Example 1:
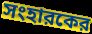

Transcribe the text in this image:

সংহারকের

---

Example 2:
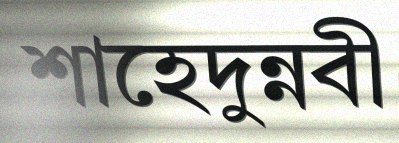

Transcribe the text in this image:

শাহেদুন্নবী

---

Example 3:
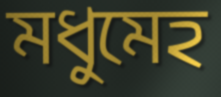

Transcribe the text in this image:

মধুমেহ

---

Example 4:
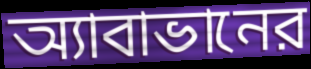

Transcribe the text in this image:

অ্যাবাভানের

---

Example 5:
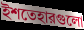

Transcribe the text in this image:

ইশতেহারগুলো